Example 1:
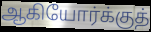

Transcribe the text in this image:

ஆகியோர்க்குத்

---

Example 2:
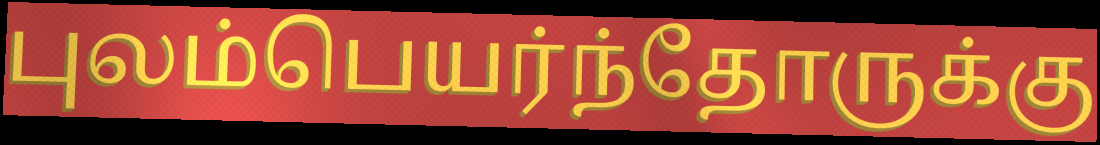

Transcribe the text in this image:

புலம்பெயர்ந்தோருக்கு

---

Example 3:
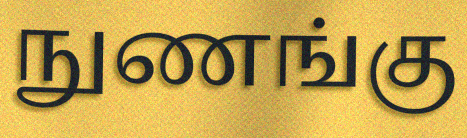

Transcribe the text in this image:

நுணங்கு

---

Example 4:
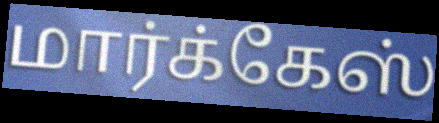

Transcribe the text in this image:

மார்க்கேஸ்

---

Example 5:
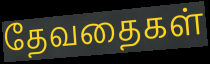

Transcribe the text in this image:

தேவதைகள்